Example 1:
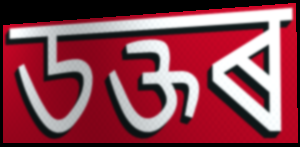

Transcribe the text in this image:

ডক্তৰ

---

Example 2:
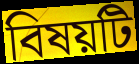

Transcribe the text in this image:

বিষয়টি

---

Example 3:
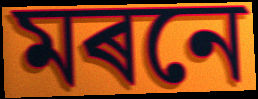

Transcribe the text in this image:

মৰনে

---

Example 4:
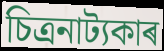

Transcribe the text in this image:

চিত্ৰনাট্যকাৰ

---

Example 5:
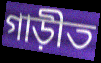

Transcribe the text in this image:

গাড়ীত